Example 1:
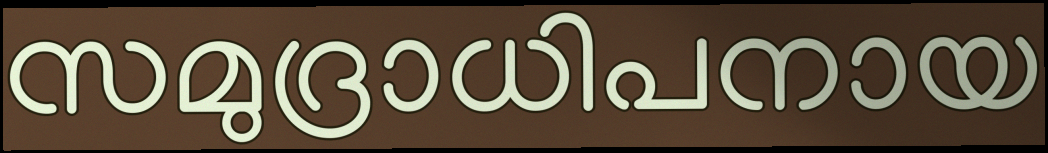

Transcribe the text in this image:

സമുദ്രാധിപനായ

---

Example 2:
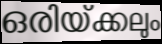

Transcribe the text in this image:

ഒരിയ്‌ക്കലും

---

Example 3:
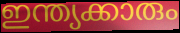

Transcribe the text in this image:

ഇന്ത്യക്കാരും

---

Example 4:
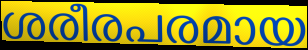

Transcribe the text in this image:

ശരീരപരമായ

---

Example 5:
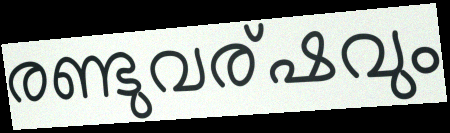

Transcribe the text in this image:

രണ്ടുവര്ഷവും